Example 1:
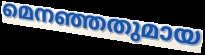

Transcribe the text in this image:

മെനഞ്ഞതുമായ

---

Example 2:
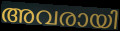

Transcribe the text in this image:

അവരായി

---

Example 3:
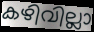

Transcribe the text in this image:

കഴിവില്ലാ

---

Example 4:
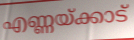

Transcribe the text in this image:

എണ്ണയ്ക്കാട്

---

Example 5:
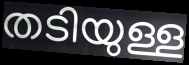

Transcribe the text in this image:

തടിയുള്ള